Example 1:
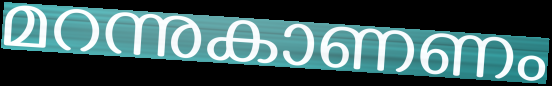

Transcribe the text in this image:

മറന്നുകാണണം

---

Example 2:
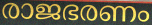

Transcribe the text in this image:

രാജഭരണം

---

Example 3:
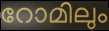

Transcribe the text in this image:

റോമിലും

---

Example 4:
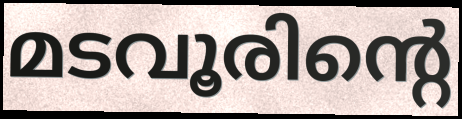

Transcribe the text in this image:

മടവൂരിന്റെ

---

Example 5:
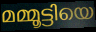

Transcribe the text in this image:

മമ്മൂട്ടിയെ